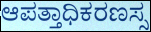
ಆಪತ್ತಾಧಿಕರಣಸ್ಸ